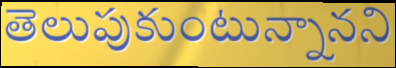
తెలుపుకుంటున్నానని